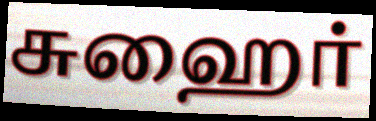
சுஹைர்